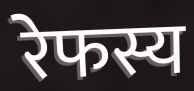
रेफस्य